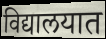
विद्यालयात